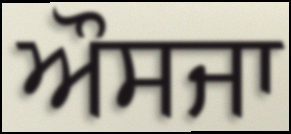
ਔਸਜਾ